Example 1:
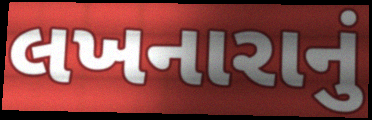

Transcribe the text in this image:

લખનારાનું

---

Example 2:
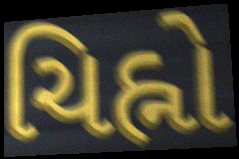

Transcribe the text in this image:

ચિહ્નો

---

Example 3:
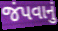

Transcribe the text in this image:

જંપવાનું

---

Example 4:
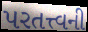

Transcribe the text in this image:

પરતત્ત્વની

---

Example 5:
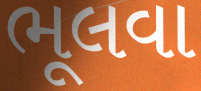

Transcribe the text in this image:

ભૂલવા